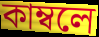
কাম্বলে